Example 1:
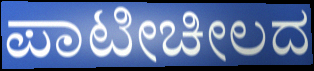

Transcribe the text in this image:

ಪಾಟೀಚೀಲದ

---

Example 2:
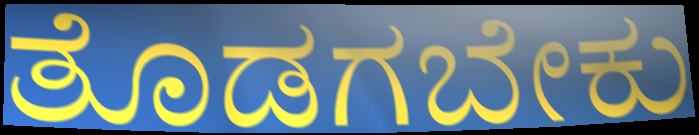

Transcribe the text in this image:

ತೊಡಗಬೇಕು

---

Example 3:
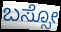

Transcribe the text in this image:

ಬಸ್ಸೋ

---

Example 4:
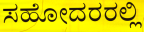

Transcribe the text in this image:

ಸಹೋದರರಲ್ಲಿ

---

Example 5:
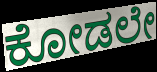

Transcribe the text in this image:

ಕೋಡಲೇ